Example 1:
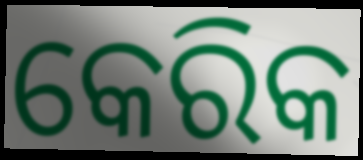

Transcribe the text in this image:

କେରିକ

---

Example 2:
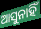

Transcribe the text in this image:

ଆସୁନାହିଁ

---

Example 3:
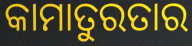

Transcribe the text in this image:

କାମାତୁରତାର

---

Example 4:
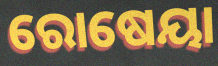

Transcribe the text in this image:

ରୋଷେୟା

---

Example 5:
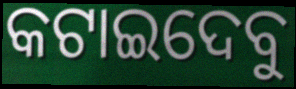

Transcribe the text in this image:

କଟାଇଦେବୁ